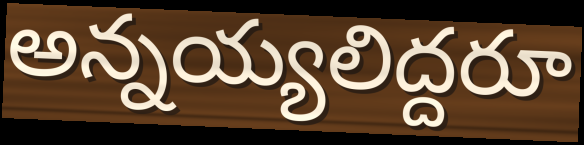
అన్నయ్యలిద్దరూ